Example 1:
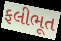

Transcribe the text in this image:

ફલીભૂત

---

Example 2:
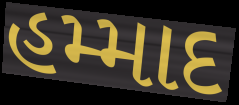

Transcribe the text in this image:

હમ્માદ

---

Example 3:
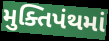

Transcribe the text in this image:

મુક્તિપંથમાં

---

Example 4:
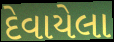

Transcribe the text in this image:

દેવાયેલા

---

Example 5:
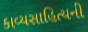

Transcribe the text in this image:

કાવ્યસાહિત્યની